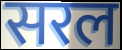
सरल